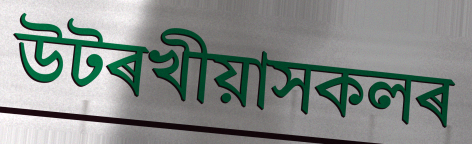
উটৰখীয়াসকলৰ